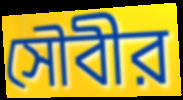
সৌবীর